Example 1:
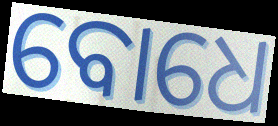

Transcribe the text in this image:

ବୋଧେ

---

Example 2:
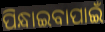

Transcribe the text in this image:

ପିନ୍ଧାଇବାପାଇଁ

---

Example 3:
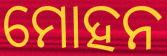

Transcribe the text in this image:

ମୋହନ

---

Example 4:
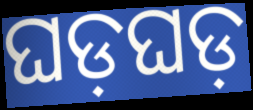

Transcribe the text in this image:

ଘଡ଼ଘଡ଼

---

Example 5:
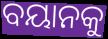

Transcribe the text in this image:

ବୟାନକୁ